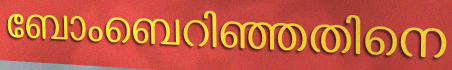
ബോംബെറിഞ്ഞതിനെ